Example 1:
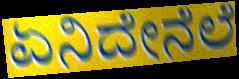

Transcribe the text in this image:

ಏನಿದೇನೆಲೆ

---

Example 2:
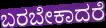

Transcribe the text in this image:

ಬರಬೇಕಾದರೆ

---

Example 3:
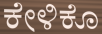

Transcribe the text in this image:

ಕೇಳಿಕೊ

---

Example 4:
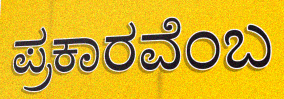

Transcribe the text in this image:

ಪ್ರಕಾರವೆಂಬ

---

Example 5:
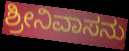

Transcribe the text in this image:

ಶ್ರೀನಿವಾಸನು